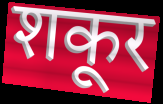
शकूर